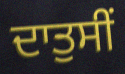
ਦਾਤੁਸੀਂ